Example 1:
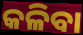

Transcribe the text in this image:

କଳିବା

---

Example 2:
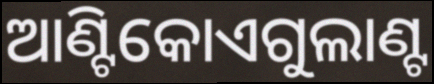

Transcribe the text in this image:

ଆଣ୍ଟିକୋଏଗୁଲାଣ୍ଟ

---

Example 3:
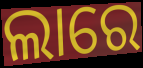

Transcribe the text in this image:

ଲାରେ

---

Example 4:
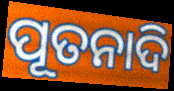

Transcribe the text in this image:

ପୂତନାଦି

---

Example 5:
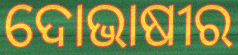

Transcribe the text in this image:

ଦୋଭାଷୀର